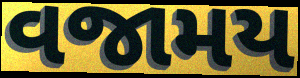
વજામય